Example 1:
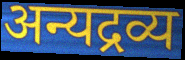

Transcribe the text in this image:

अन्यद्रव्य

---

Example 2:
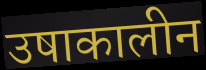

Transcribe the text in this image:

उषाकालीन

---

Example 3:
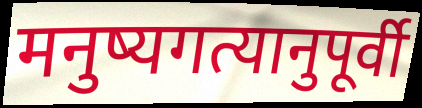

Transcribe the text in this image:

मनुष्यगत्यानुपूर्वी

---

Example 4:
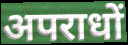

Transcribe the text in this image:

अपराधों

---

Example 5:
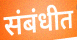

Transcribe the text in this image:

संबंधीत